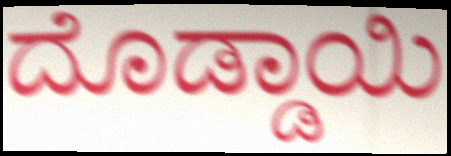
ದೊಡ್ಡಾಯಿ